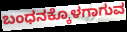
ಬಂಧನಕ್ಕೊಳಗಾಗುವ